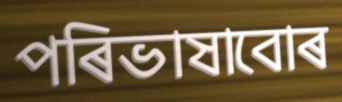
পৰিভাষাবোৰ